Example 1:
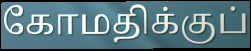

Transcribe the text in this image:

கோமதிக்குப்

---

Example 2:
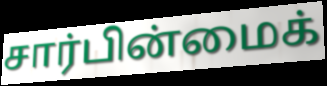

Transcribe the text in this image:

சார்பின்மைக்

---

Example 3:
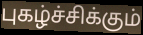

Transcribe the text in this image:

புகழ்ச்சிக்கும்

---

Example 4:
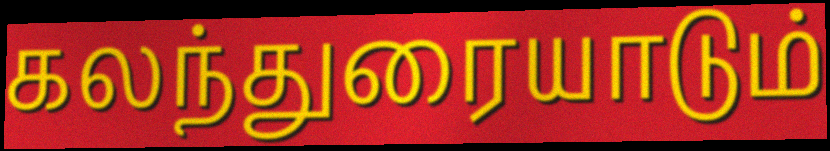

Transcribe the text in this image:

கலந்துரையாடும்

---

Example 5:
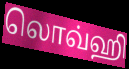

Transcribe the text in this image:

லொவ்ஹி